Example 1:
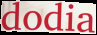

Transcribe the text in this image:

dodia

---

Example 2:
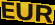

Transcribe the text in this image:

EUR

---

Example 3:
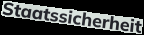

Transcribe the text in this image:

Staatssicherheit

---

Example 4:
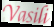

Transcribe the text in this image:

Vasili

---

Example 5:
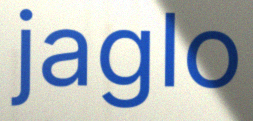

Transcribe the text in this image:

jaglo